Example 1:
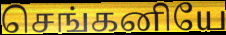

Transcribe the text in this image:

செங்கனியே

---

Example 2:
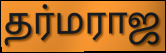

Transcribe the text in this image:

தர்மராஜ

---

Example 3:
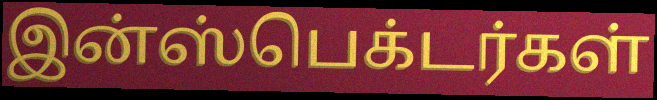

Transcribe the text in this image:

இன்ஸ்பெக்டர்கள்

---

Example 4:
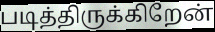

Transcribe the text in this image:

படித்திருக்கிறேன்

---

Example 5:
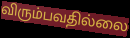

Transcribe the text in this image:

விரும்பவதில்லை